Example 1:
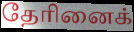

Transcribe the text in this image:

தேரினைக்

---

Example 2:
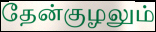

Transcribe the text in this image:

தேன்குழலும்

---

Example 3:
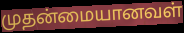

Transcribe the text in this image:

முதன்மையானவள்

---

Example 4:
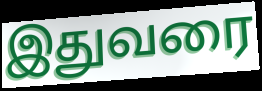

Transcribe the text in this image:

இதுவரை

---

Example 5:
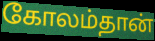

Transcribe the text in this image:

கோலம்தான்